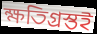
ক্ষতিগ্রস্তই